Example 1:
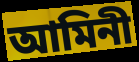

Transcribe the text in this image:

আমিনী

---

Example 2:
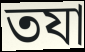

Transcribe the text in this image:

তযা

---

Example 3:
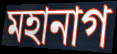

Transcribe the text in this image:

মহানাগ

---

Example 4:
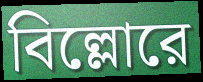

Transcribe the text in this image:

বিল্লোরে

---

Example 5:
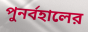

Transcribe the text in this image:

পুনর্বহালের